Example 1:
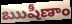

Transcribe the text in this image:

ఋషీణాం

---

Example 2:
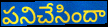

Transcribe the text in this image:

పనిచేసిందా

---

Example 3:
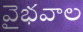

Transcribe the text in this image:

వైభవాల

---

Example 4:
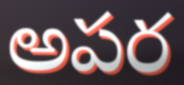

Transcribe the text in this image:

అపర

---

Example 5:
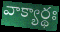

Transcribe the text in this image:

వాక్యార్థః